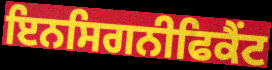
ਇਨਸਿਗਨੀਫਿਕੈਂਟ